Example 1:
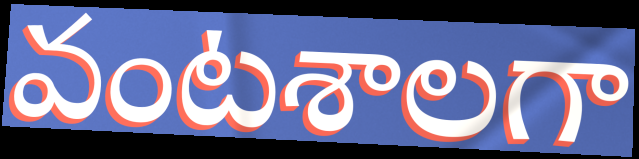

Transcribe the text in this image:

వంటశాలగా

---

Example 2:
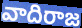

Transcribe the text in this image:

వాదిరాజ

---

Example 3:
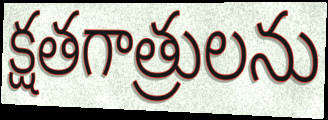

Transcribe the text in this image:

క్షతగాత్రులను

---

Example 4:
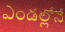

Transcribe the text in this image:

ఎండల్లోనే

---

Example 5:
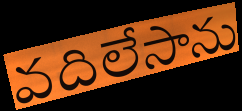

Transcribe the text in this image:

వదిలేసాను